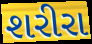
શરીરા